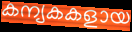
കന്യകകളായ